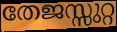
തേജസ്സുറ്റ